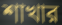
শাখার